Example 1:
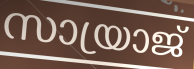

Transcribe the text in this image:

സായ്രാജ്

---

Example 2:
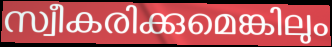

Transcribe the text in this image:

സ്വീകരിക്കുമെങ്കിലും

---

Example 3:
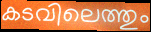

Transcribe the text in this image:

കടവിലെത്തും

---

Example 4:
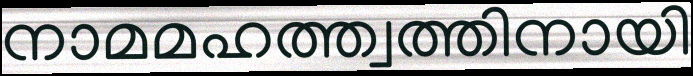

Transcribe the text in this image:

നാമമഹത്ത്വത്തിനായി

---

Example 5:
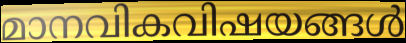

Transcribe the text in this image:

മാനവികവിഷയങ്ങൾ